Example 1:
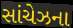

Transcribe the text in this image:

સાંચેઝના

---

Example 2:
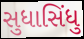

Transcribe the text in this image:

સુધાસિંધુ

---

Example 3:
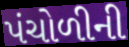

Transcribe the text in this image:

પંચોળીની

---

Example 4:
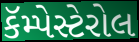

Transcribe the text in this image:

કૅમ્પેસ્ટેરોલ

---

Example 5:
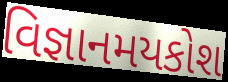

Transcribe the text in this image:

વિજ્ઞાનમયકોશ